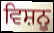
ਵਿਸ਼ਨੂ